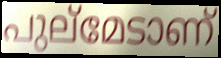
പുല്മേടാണ്